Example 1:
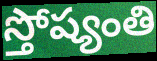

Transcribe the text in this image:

స్తోష్యంతి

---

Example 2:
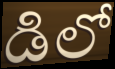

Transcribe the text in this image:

డిలో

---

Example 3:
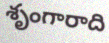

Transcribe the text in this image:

శృంగారాది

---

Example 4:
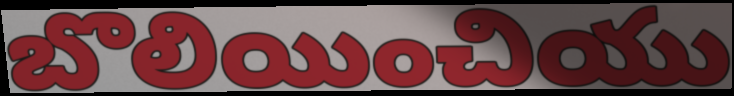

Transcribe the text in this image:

బొలియించియు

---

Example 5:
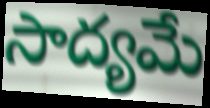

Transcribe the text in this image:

సాద్యమే